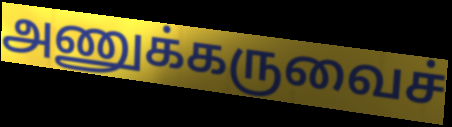
அணுக்கருவைச்